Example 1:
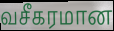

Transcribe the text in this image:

வசீகரமான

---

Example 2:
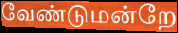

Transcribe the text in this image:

வேண்டுமன்றே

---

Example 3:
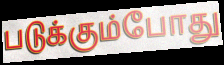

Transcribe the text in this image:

படுக்கும்போது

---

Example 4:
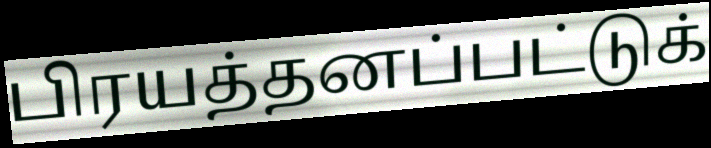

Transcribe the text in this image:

பிரயத்தனப்பட்டுக்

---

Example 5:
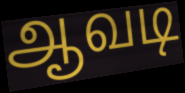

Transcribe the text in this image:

ஆவடி